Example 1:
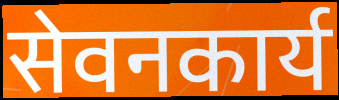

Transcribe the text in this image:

सेवनकार्य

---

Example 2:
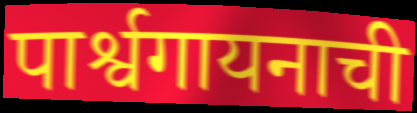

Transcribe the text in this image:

पार्श्वगायनाची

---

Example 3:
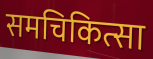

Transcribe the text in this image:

समचिकित्सा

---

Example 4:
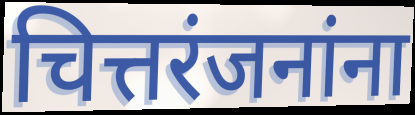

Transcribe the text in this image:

चित्तरंजनांना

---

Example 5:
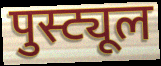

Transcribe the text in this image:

पुस्ट्यूल